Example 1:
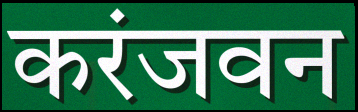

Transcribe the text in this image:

करंजवन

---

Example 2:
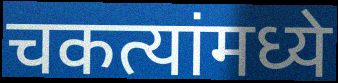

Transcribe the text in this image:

चकत्यांमध्ये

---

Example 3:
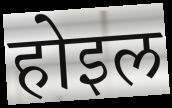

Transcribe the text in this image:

होइल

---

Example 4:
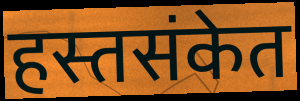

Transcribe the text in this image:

हस्तसंकेत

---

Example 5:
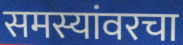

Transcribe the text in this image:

समस्यांवरचा